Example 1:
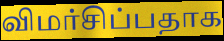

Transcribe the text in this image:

விமர்சிப்பதாக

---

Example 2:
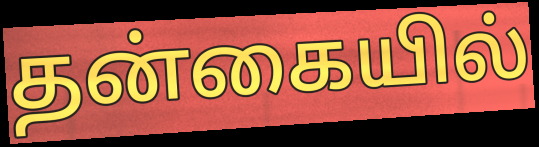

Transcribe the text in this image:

தன்கையில்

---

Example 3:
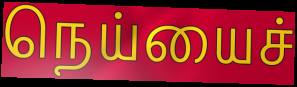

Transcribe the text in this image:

நெய்யைச்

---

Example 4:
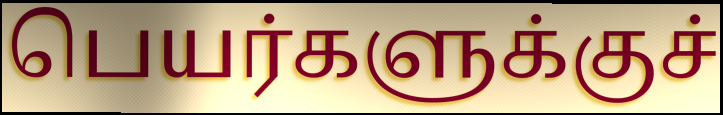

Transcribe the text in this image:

பெயர்களுக்குச்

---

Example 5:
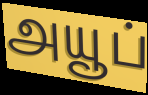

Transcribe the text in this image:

அயூப்